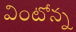
వింటోన్న